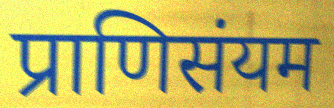
प्राणिसंयम